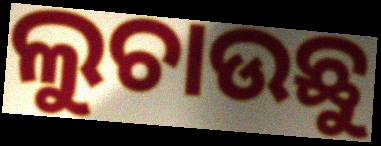
ଲୁଚାଉଛୁ